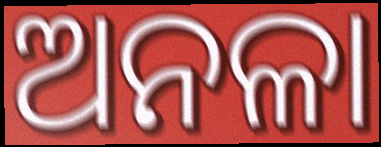
ଅନଳା